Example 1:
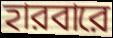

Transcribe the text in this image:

হারবারে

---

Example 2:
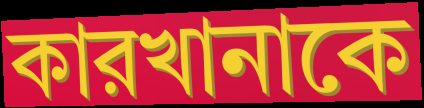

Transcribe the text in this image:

কারখানাকে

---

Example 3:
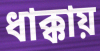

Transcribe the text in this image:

ধাক্কায়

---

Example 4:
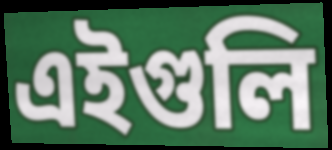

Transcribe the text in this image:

এইগুলি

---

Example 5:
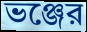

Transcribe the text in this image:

ভঞ্জের